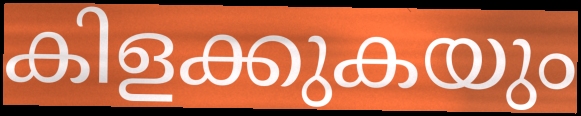
കിളക്കുകയും